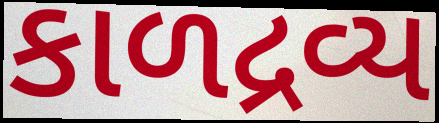
કાળદ્રવ્ય